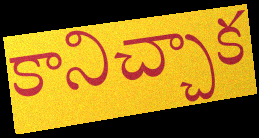
కానిచ్చాక